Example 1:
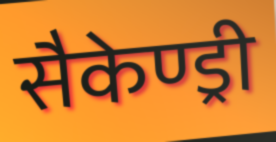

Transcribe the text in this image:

सैकेण्ड्री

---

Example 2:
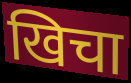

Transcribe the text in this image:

खिचा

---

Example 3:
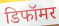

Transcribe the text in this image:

डिफॉमर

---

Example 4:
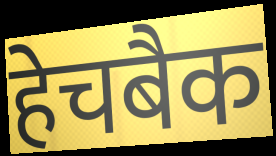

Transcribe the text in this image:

हेचबैक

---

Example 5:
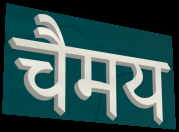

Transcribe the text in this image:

चैमय